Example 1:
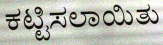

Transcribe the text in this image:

ಕಟ್ಟಿಸಲಾಯಿತು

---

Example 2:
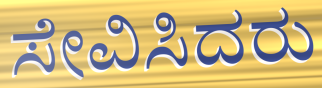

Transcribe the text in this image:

ಸೇವಿಸಿದರು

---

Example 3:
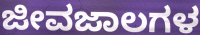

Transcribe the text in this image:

ಜೀವಜಾಲಗಳ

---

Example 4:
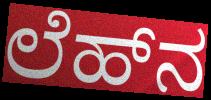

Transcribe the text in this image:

ಲೆಹ್‌ನ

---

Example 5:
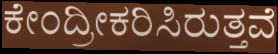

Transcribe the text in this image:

ಕೇಂದ್ರೀಕರಿಸಿರುತ್ತವೆ